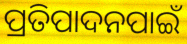
ପ୍ରତିପାଦନପାଇଁ